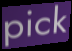
pick